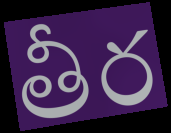
తీర